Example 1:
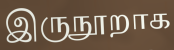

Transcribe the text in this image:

இருநூறாக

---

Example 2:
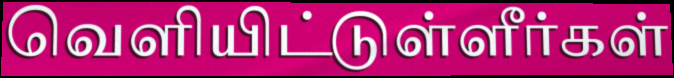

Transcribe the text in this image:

வெளியிட்டுள்ளீர்கள்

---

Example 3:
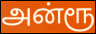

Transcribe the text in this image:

அன்ரூ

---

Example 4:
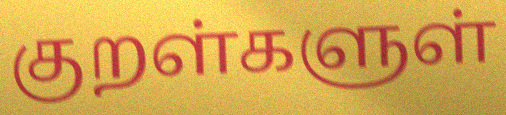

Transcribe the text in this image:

குறள்களுள்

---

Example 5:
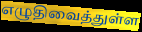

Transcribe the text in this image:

எழுதிவைத்துள்ள